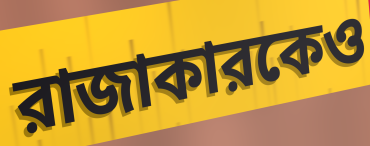
রাজাকারকেও